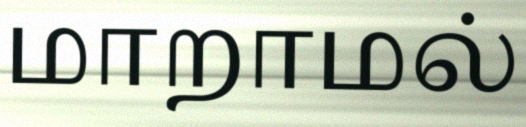
மாறாமல்